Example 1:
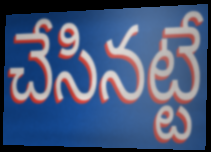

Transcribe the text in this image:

చేసినట్టే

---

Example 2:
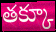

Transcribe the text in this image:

తక్కూ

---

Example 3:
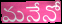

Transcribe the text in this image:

మనేనో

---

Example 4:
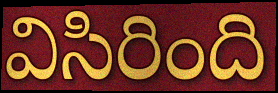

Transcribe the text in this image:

విసిరింది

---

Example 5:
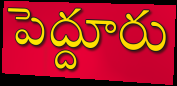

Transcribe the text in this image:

పెద్దూరు